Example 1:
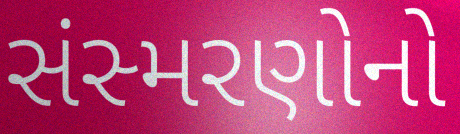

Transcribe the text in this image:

સંસ્મરણોનો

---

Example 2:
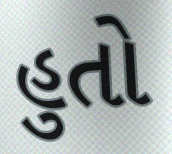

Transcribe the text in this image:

હુતો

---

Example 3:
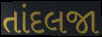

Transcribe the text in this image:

તાંદલજા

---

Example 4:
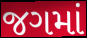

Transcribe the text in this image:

જગમાં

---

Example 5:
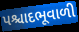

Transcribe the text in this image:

પશ્ચાદભૂવાળી